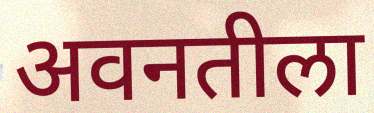
अवनतीला